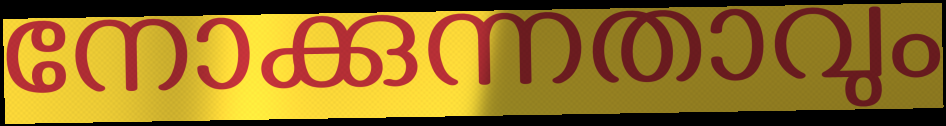
നോക്കുന്നതാവും